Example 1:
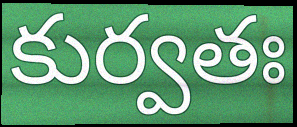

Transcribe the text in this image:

కుర్వతః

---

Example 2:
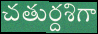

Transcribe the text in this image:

చతుర్దశిగా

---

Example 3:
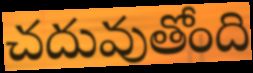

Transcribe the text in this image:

చదువుతోంది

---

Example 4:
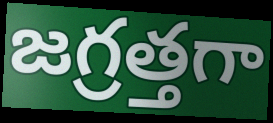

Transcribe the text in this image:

జగ్రత్తగా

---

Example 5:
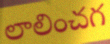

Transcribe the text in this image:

లాలించగ